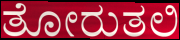
ತೋರುತಲಿ